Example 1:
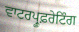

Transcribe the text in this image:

ਵਾਟਰਪ੍ਰੂਫ਼ਰੇਟਿੰਗ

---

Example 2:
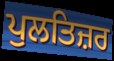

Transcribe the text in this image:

ਪੁਲਤਿਜ਼ਰ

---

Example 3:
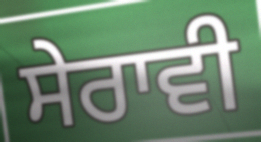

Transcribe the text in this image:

ਸੇਰਾਵੀ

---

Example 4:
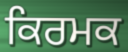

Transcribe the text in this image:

ਕਿਰਮਕ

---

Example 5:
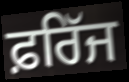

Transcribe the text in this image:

ਫ਼ਰਿੱਜ